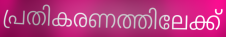
പ്രതികരണത്തിലേക്ക്